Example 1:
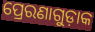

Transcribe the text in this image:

ପ୍ରେରଣାଗୁଡ଼ାକ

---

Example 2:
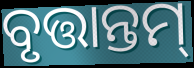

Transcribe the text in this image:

ବୃତ୍ତାନ୍ତମ୍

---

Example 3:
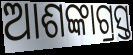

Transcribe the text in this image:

ଆଶଙ୍କାଗ୍ରସ୍ତ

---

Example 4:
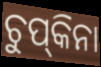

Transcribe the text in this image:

ଚୁପ୍‌କିନା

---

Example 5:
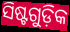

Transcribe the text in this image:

ସିଷ୍ଟଗୁଡ଼ିକ